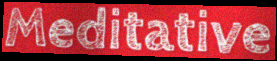
Meditative